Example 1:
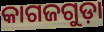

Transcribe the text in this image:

କାଗଜଗୁଡ଼ା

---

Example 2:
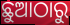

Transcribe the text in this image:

ଛୁଆଠାରୁ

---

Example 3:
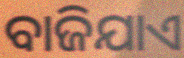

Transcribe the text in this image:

ବାଜିଯାଏ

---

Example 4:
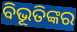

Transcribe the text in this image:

ବିଭୂତିଙ୍କର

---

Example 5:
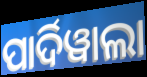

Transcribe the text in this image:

ପାର୍ଦିୱାଲା